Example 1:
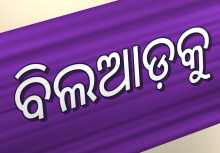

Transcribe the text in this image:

ବିଲଆଡ଼କୁ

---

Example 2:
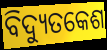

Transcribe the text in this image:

ବିଦ୍ୟୁତକେଶ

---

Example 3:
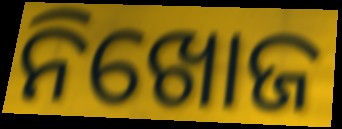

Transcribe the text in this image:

ନିଖୋଜ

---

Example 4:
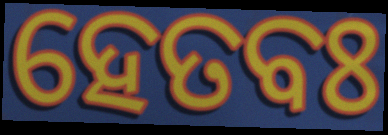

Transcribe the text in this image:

ହେତବଃ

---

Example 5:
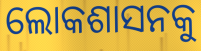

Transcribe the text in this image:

ଲୋକଶାସନକୁ